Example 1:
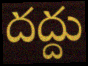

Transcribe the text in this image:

దద్దు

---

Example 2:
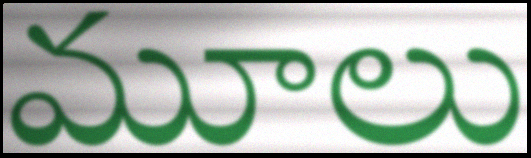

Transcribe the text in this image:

మూలు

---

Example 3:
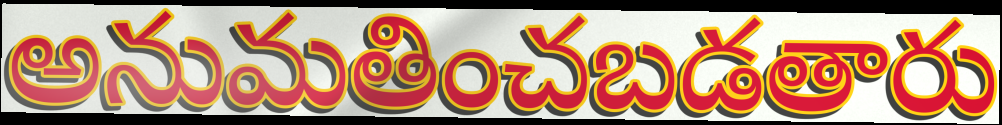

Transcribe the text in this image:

అనుమతించబడతారు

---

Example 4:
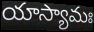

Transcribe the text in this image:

యాస్యామః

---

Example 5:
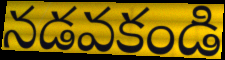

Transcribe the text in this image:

నడవకండి